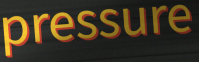
pressure